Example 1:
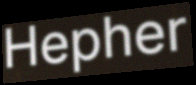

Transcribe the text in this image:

Hepher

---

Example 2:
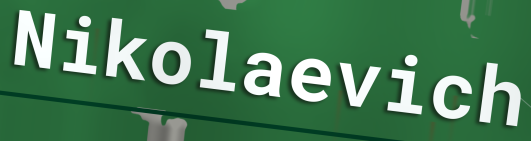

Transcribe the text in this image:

Nikolaevich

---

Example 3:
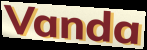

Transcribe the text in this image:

Vanda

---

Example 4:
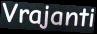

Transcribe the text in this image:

Vrajanti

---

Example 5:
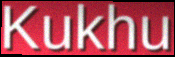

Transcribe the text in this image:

Kukhu